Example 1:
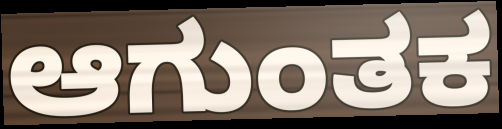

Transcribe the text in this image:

ಆಗುಂತಕ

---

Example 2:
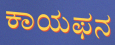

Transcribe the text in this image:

ಕಾಯಫನ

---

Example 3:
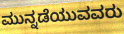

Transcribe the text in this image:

ಮುನ್ನಡೆಯುವವರು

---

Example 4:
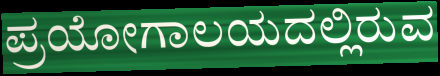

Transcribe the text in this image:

ಪ್ರಯೋಗಾಲಯದಲ್ಲಿರುವ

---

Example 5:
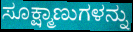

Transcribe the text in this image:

ಸೂಕ್ಷ್ಮಾಣುಗಳನ್ನು